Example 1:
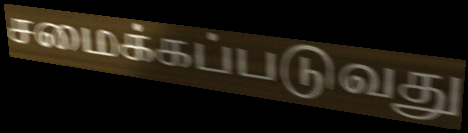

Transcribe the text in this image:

சமைக்கப்படுவது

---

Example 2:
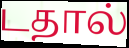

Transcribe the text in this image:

டதால்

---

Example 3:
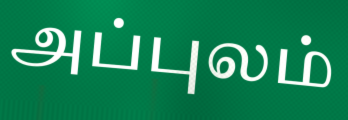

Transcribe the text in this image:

அப்புலம்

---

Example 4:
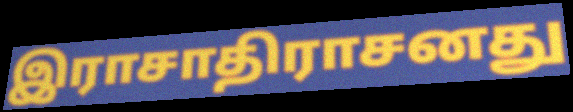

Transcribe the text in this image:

இராசாதிராசனது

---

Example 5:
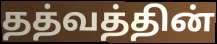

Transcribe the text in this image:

தத்வத்தின்